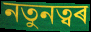
নতুনত্বৰ